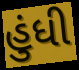
હુંધી